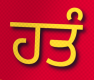
ਹਤੰ